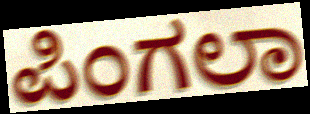
ಪಿಂಗಲಾ